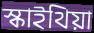
স্কাইথিয়া